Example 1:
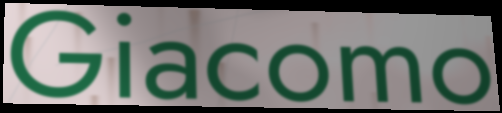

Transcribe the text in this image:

Giacomo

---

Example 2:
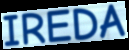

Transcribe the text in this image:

IREDA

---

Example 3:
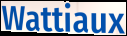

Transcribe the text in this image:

Wattiaux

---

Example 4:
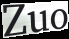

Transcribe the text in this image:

Zuo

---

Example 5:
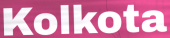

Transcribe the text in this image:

Kolkota